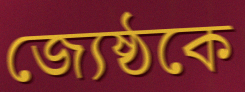
জ্যেষ্ঠকে